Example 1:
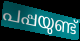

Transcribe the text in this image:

പപ്പയുണ്ട്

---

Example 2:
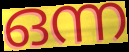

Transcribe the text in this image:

ഒന്ന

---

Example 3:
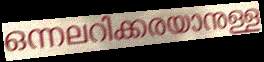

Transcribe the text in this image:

ഒന്നലറിക്കരയാനുള്ള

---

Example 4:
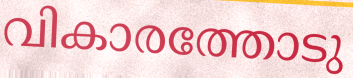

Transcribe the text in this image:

വികാരത്തോടു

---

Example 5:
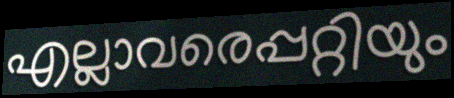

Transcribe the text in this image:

എല്ലാവരെപ്പറ്റിയും